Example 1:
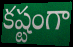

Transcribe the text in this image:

కష్టంగా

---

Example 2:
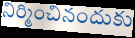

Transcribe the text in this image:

నిర్మించినందుకు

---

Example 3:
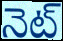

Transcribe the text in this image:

నెట్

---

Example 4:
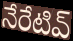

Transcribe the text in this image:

నేరేటివ్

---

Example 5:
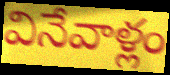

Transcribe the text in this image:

వినేవాళ్లం